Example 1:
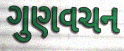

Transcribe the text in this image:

ગુણવચન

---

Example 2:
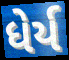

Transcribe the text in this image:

ધેર્ય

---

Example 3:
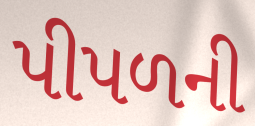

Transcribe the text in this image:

પીપળની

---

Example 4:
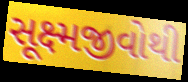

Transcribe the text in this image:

સૂક્ષ્મજીવોથી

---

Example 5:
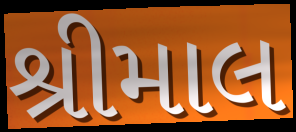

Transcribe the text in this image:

શ્રીમાલ